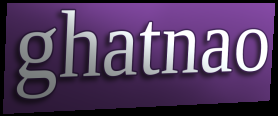
ghatnao